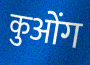
कुओंग